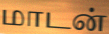
மாடன்